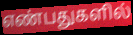
எண்பதுகளில்